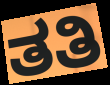
ತತಿ